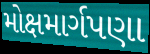
મોક્ષમાર્ગપણા